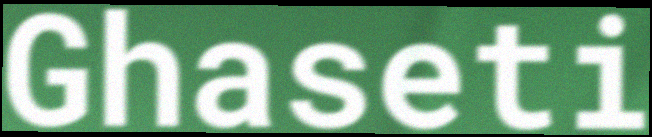
Ghaseti